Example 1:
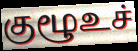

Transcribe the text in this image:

குழூஉச்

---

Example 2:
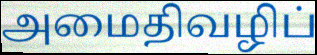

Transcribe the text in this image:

அமைதிவழிப்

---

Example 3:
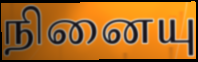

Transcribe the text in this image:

நினையு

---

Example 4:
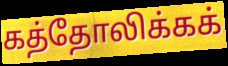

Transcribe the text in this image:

கத்தோலிக்கக்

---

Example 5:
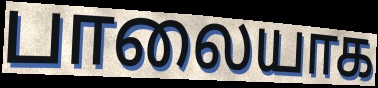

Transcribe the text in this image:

பாலையாக